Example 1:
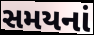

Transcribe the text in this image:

સમયનાં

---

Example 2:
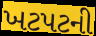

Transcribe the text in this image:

ખટપટની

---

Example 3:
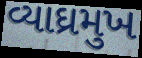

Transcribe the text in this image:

વ્યાઘ્રમુખ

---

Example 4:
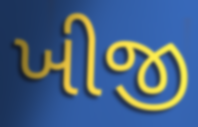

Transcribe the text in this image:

ખીજી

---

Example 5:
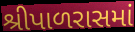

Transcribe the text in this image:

શ્રીપાળરાસમાં